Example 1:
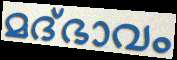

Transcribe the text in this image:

മദ്ഭാവം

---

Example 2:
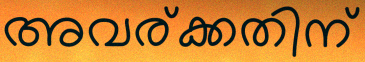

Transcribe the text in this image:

അവര്ക്കതിന്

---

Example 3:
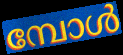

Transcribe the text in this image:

മ്പോൾ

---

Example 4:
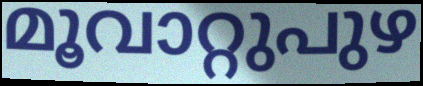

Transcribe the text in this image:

മൂവാറ്റുപുഴ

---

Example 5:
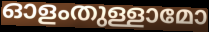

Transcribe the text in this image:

ഓളംതുള്ളാമോ